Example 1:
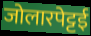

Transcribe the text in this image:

जोलारपेट्टई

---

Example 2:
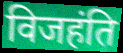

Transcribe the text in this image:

विजहंति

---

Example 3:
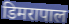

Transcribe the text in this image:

डिमरापाल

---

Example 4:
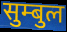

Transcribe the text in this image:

सुम्बुल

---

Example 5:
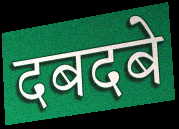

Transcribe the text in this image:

दबदबे